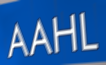
AAHL